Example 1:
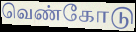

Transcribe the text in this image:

வெண்கோடு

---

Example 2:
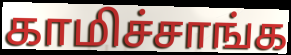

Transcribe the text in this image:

காமிச்சாங்க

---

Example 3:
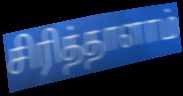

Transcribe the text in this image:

சிரித்தாளாம்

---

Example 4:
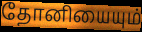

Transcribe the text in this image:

தோனியையும்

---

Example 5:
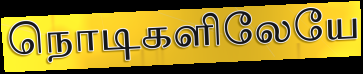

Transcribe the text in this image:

நொடிகளிலேயே